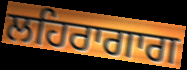
ਲਹਿਰਾਗਾਗ